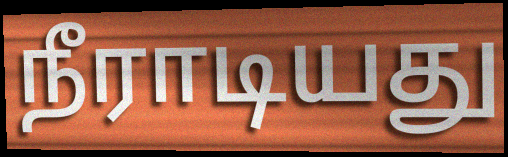
நீராடியது